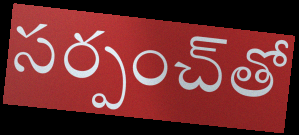
సర్పంచ్‌తో